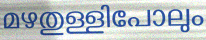
മഴതുള്ളിപോലും